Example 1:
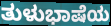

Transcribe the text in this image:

ತುಳುಭಾಷೆಯ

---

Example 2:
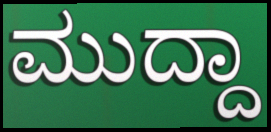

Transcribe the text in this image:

ಮುದ್ದಾ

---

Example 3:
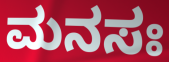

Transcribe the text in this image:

ಮನಸಃ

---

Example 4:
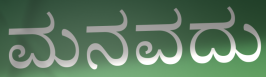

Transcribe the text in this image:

ಮನವದು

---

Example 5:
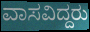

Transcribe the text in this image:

ವಾಸವಿದ್ದರು